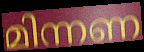
മിന്നണ